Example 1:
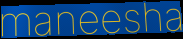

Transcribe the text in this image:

maneesha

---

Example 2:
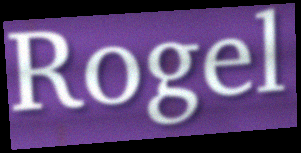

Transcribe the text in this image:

Rogel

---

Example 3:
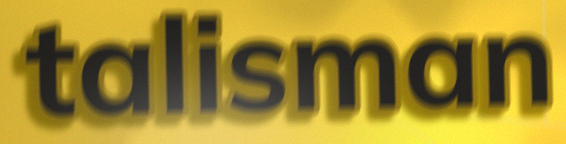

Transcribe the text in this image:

talisman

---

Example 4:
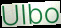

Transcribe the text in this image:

Ulbo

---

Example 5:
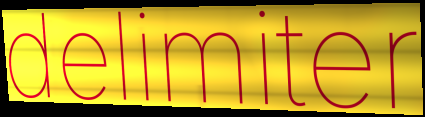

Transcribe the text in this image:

delimiter